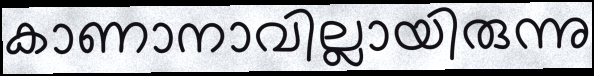
കാണാനാവില്ലായിരുന്നു